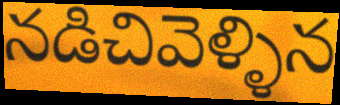
నడిచివెళ్ళిన